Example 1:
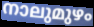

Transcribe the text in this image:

നാലുമുഴം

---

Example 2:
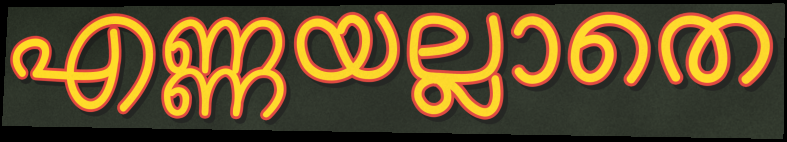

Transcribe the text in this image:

എണ്ണയല്ലാതെ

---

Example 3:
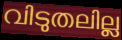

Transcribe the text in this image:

വിടുതലില്ല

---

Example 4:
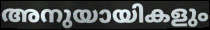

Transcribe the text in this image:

അനുയായികളും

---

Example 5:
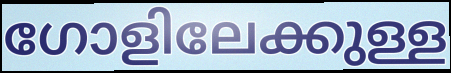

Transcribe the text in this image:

ഗോളിലേക്കുള്ള